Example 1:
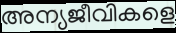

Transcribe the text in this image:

അന്യജീവികളെ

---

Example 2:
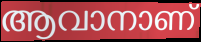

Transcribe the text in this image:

ആവാനാണ്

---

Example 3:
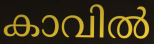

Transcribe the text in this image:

കാവിൽ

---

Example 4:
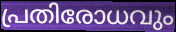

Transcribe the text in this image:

പ്രതിരോധവും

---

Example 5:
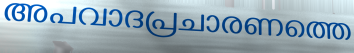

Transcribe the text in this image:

അപവാദപ്രചാരണത്തെ